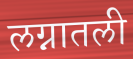
लग्नातली